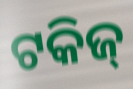
ଟକିଜ୍